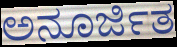
ಅನೂರ್ಜಿತ